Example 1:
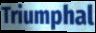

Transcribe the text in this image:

Triumphal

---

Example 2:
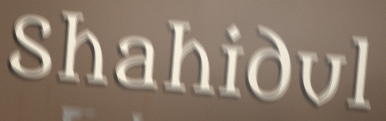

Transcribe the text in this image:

Shahidul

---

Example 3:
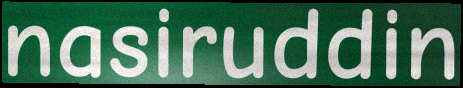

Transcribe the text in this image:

nasiruddin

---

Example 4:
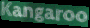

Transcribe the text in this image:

Kangaroo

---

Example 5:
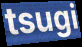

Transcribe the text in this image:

tsugi